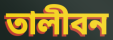
তালীবন